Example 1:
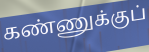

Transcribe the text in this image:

கண்ணுக்குப்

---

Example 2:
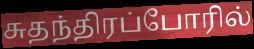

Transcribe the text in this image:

சுதந்திரப்போரில்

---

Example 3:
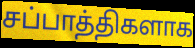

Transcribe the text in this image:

சப்பாத்திகளாக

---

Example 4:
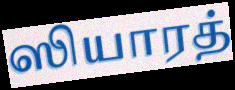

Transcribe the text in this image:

ஸியாரத்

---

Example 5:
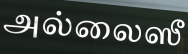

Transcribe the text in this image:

அல்லைஸீ